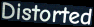
Distorted